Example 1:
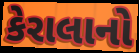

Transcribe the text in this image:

કેરાલાનો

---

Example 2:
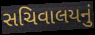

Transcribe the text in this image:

સચિવાલયનું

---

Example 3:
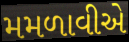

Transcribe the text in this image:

મમળાવીએ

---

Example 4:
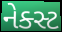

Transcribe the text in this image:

નેક્સ્ટ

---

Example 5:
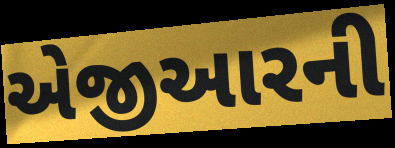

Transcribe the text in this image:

એજીઆરની